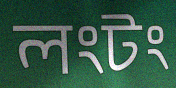
লংটং